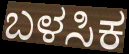
ಬಳಸಿಕ